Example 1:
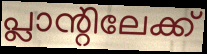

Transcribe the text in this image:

പ്ലാന്റിലേക്ക്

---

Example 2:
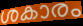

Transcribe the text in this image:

ശകാരം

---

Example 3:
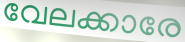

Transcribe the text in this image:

വേലക്കാരേ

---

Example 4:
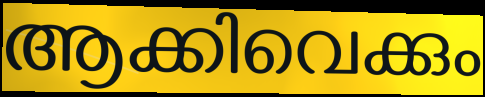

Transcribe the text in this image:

ആക്കിവെക്കും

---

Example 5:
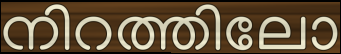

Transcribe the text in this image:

നിറത്തിലോ